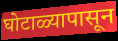
घोटाळ्यापासून